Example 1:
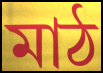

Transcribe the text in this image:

মাঠ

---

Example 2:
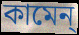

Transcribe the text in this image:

কামেন্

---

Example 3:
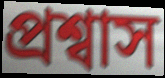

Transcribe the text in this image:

প্রশ্বাস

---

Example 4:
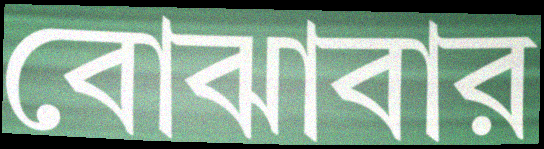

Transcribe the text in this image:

বোঝাবার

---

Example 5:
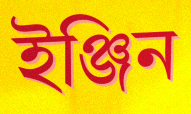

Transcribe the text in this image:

ইঞ্জিন